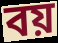
বয়